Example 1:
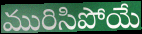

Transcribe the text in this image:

మురిసిపోయే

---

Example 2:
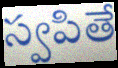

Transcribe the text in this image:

స్వపితే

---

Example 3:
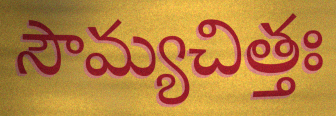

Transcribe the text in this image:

సౌమ్యచిత్తః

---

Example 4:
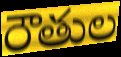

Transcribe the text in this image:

రౌతుల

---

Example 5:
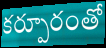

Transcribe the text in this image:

కర్పూరంతో